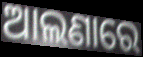
ଆଲଣାରେ